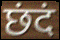
छंदं